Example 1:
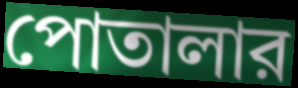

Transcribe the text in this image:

পোতালার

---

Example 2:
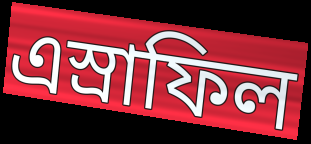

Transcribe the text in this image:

এস্রাফিল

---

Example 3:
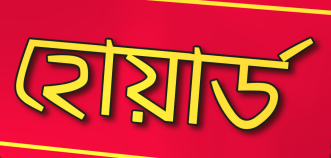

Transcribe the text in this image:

হোয়ার্ড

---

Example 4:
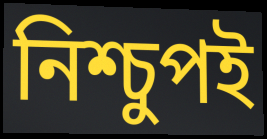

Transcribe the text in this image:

নিশ্চুপই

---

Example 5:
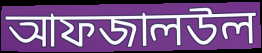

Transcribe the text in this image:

আফজালউল